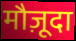
मौज़ूदा